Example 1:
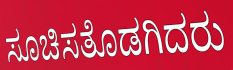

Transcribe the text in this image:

ಸೂಚಿಸತೊಡಗಿದರು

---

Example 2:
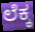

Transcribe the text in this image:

ಲೆಕ್ಕ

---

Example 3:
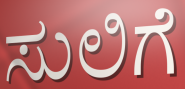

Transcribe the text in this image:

ಸುಲಿಗೆ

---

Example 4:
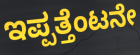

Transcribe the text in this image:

ಇಪ್ಪತ್ತೆಂಟನೇ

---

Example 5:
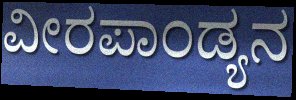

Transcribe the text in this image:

ವೀರಪಾಂಡ್ಯನ